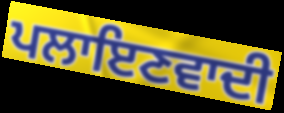
ਪਲਾਇਣਵਾਦੀ